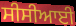
ਸੀਸੀਆਈ